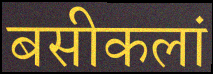
बसीकलां